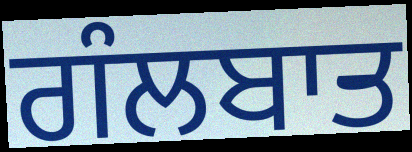
ਗੰਲਬਾਤ